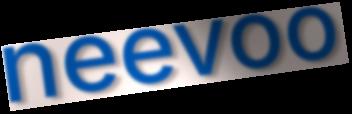
neevoo